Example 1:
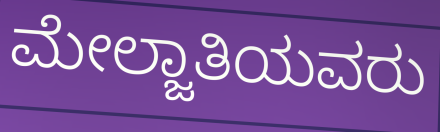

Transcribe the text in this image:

ಮೇಲ್ಜಾತಿಯವರು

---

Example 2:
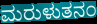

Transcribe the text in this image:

ಮರುಳುತನಂ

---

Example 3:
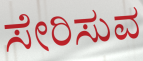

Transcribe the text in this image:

ಸೇರಿಸುವ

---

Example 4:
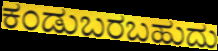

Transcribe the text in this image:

ಕಂಡುಬರಬಹುದು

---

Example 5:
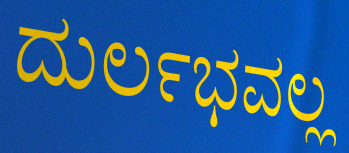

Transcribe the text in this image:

ದುರ್ಲಭವಲ್ಲ